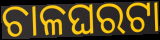
ଚାଳଘରଟା